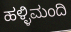
ಹಳ್ಳಿಮಂದಿ